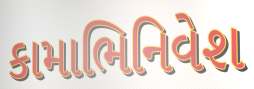
કામાભિનિવેશ